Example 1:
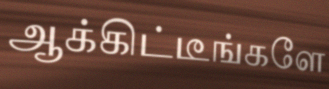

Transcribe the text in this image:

ஆக்கிட்டீங்களே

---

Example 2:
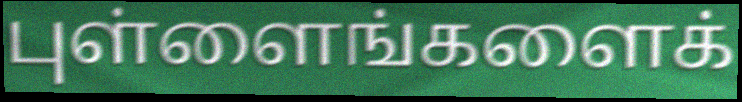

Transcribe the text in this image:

புள்ளைங்களைக்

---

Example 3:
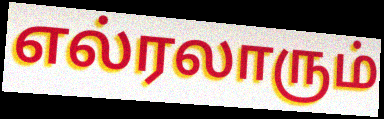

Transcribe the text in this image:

எல்ரலாரும்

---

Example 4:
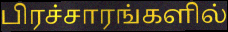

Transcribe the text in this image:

பிரச்சாரங்களில்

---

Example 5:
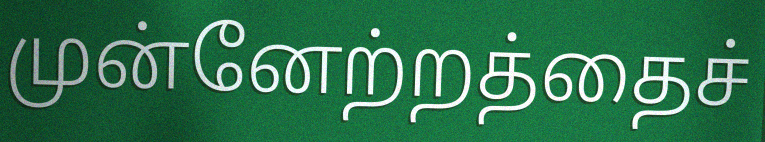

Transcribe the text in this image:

முன்னேற்றத்தைச்